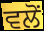
ਵਲੋੰ